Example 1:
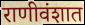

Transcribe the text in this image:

राणीवंशात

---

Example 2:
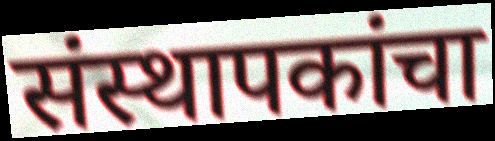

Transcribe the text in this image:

संस्थापकांचा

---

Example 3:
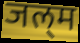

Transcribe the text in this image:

जल्म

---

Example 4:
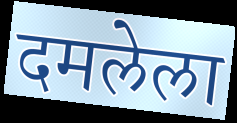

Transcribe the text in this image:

दमलेला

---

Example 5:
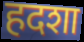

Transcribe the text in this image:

हदशा